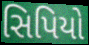
સિપિયો